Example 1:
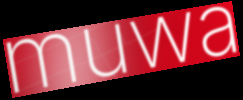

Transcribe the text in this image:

muwa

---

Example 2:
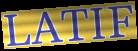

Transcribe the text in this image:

LATIF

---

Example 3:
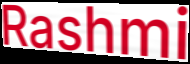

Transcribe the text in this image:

Rashmi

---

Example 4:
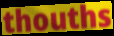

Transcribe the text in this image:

thouths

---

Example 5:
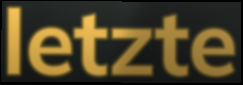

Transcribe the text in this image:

letzte